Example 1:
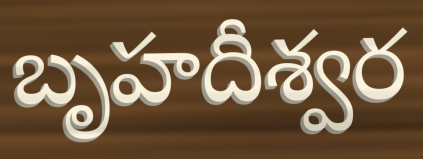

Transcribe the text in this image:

బృహదీశ్వర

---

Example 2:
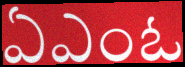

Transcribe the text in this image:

ఏఎంఓ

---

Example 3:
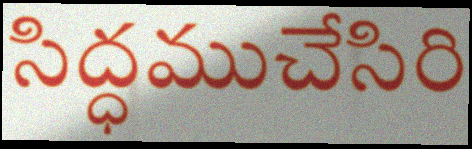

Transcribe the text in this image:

సిద్ధముచేసిరి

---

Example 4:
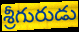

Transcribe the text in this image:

శ్రీగురుడు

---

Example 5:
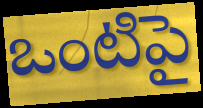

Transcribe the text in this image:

ఒంటిపై